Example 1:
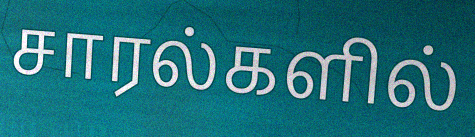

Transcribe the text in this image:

சாரல்களில்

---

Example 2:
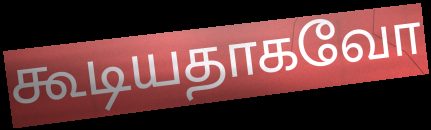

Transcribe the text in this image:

கூடியதாகவோ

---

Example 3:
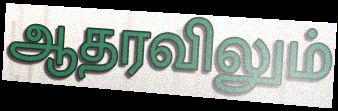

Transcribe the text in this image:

ஆதரவிலும்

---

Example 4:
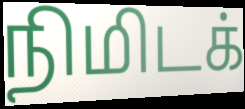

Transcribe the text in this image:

நிமிடக்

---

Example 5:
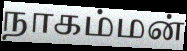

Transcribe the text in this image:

நாகம்மன்